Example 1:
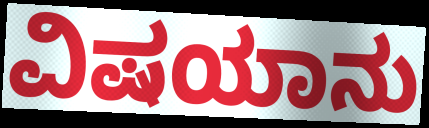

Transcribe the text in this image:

ವಿಷಯಾನು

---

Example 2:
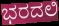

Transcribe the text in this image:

ಭರದಲಿ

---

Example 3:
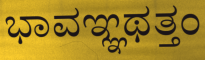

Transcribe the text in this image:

ಭಾವಞ್ಞಥತ್ತಂ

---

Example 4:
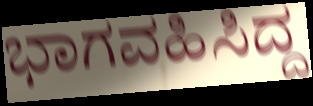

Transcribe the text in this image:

ಭಾಗವಹಿಸಿದ್ದ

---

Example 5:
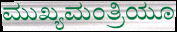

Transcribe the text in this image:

ಮುಖ್ಯಮಂತ್ರಿಯೂ